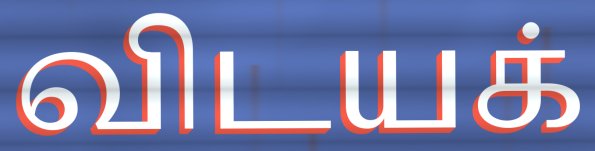
விடயக்